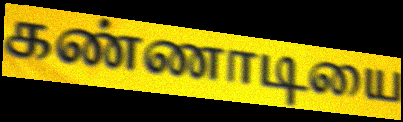
கண்ணாடியை